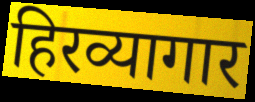
हिरव्यागार